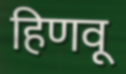
हिणवू